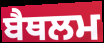
ਬੈਥਲਮ